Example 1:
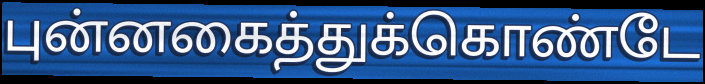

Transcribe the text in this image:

புன்னகைத்துக்கொண்டே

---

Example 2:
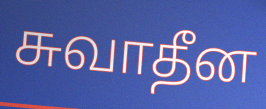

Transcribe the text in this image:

சுவாதீன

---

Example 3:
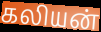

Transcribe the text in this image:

கலியன்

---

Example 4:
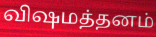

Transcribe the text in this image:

விஷமத்தனம்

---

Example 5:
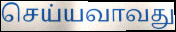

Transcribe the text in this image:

செய்யவாவது